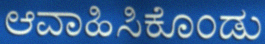
ಆವಾಹಿಸಿಕೊಂಡು